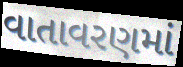
વાતાવરણમાં